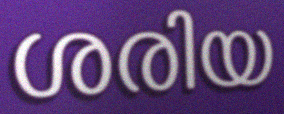
ശരിയ